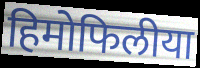
हिमोफिलीया